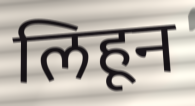
लिहून